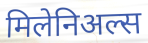
मिलेनिअल्स